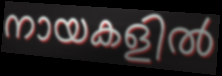
നായകളിൽ